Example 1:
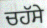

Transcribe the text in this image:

ਚਹੱਸੇ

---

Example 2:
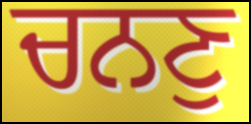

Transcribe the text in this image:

ਚਨਣੁ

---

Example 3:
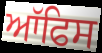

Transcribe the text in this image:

ਆੱਫਿਸ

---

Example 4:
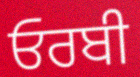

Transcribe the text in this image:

ਓਰਬੀ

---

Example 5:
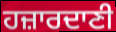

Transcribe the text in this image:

ਹਜ਼ਾਰਦਾਣੀ